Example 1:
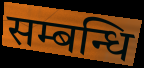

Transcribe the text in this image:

सम्बन्धि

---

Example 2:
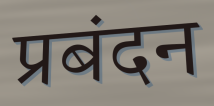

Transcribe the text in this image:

प्रबंदन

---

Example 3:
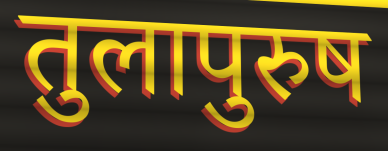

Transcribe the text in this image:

तुलापुरुष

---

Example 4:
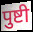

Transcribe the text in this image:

पुष्टी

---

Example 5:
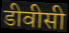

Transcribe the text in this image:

डीवीसी